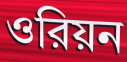
ওরিয়ন